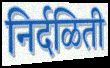
निर्दळिती